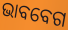
ଭାବବେଗ